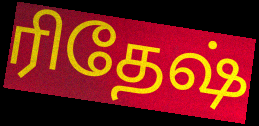
ரிதேஷ்